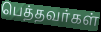
பெத்தவர்கள்